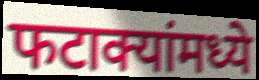
फटाक्यांमध्ये